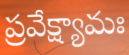
ప్రవేక్ష్యామః